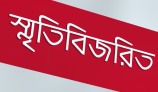
স্মৃতিবিজরিত